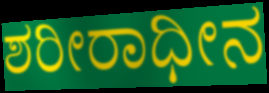
ಶರೀರಾಧೀನ